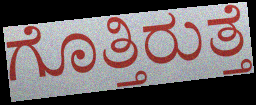
ಗೊತ್ತಿರುತ್ತೆ